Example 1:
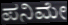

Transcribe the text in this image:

ಪನಿಮೇ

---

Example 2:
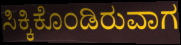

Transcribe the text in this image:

ಸಿಕ್ಕಿಕೊಂಡಿರುವಾಗ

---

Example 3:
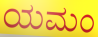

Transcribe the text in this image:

ಯಮಂ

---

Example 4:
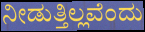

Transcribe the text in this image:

ನೀಡುತ್ತಿಲ್ಲವೆಂದು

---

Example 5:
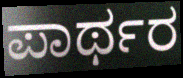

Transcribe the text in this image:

ಪಾರ್ಥರ